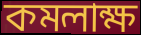
কমলাক্ষ